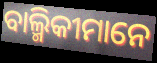
ବାଲ୍ମିକୀମାନେ